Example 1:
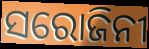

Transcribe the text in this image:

ସରୋଜିନୀ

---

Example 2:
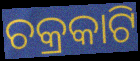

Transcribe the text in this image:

ଚକ୍ରକାଟି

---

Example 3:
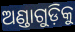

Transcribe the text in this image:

ଅଣ୍ଡାଗୁଡ଼ିକୁ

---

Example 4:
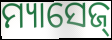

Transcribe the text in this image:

ମ୍ୟାସେଜ୍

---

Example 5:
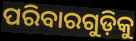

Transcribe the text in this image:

ପରିବାରଗୁଡ଼ିକୁ